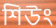
শিউং